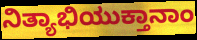
ನಿತ್ಯಾಭಿಯುಕ್ತಾನಾಂ